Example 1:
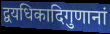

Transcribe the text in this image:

द्वयधिकादिगुणानां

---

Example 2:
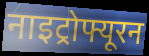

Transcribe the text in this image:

नाइट्रोफ्यूरन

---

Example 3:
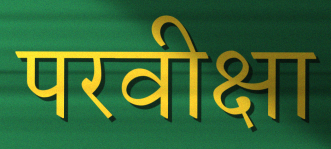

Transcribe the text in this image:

परवीक्षा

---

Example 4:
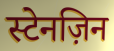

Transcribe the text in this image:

स्टेनज़िन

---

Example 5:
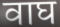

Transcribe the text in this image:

वाघ